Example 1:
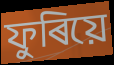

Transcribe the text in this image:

ফুৰিয়ে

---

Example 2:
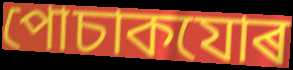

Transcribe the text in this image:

পোচাকযোৰ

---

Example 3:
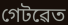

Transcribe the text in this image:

গেটৱেত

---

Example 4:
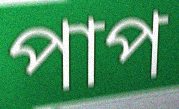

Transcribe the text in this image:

পাপ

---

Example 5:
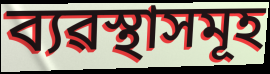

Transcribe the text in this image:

ব্যৱস্থাসমূহ